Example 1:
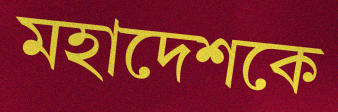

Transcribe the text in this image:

মহাদেশকে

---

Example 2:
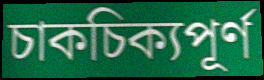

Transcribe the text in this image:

চাকচিক্যপূর্ণ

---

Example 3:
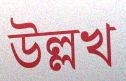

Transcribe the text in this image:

উল্লখ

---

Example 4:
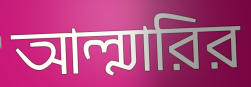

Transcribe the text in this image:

আল্মারির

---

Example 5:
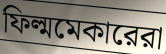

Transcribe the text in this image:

ফিল্মমেকারেরা